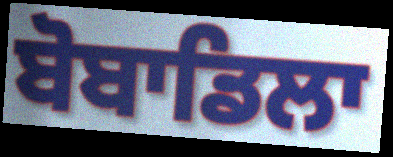
ਬੋਬਾਡਿਲਾ